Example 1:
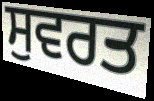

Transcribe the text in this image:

ਸੁਵਰਤ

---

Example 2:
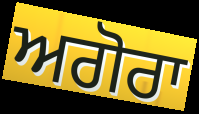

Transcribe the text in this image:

ਅਗੋਰਾ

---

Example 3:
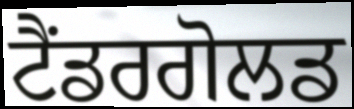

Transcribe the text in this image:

ਟੈਂਡਰਗੋਲਡ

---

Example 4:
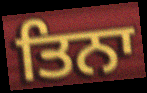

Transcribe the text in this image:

ਤਿਨਾ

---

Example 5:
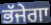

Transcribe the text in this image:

ਭੱਜੇਗਾ